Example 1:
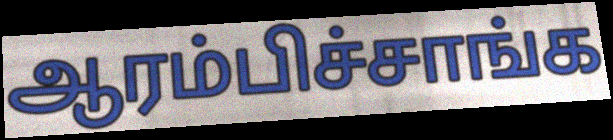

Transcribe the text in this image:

ஆரம்பிச்சாங்க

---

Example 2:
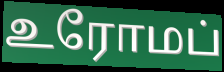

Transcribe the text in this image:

உரோமப்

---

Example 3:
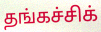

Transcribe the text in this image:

தங்கச்சிக்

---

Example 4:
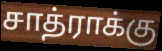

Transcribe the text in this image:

சாத்ராக்கு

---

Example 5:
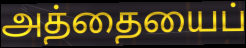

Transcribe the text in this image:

அத்தையைப்